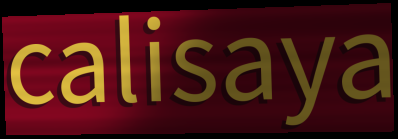
calisaya